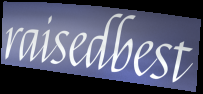
raisedbest